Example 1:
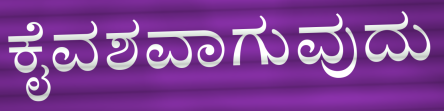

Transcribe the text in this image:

ಕೈವಶವಾಗುವುದು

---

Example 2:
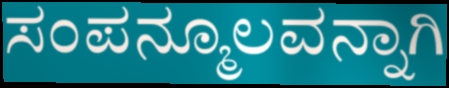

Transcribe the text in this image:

ಸಂಪನ್ಮೂಲವನ್ನಾಗಿ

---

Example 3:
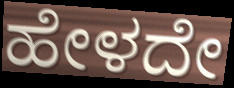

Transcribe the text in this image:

ಹೇಳದೇ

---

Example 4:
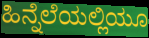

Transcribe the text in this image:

ಹಿನ್ನೆಲೆಯಲ್ಲಿಯೂ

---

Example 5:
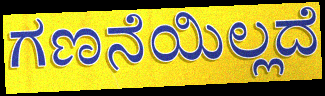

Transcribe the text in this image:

ಗಣನೆಯಿಲ್ಲದೆ